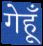
गेहूँ